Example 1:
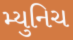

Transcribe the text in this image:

મ્યુનિચ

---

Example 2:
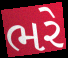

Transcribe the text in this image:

ભરે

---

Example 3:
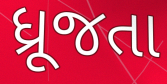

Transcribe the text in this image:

ધ્રૂજતા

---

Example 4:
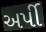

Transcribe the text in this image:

અર્પી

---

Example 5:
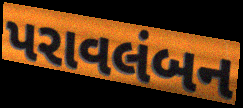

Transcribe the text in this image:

પરાવલંબન